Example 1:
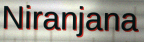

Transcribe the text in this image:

Niranjana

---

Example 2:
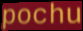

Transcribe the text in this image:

pochu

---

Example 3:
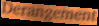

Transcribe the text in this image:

Derangement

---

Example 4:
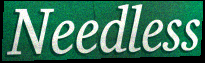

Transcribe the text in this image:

Needless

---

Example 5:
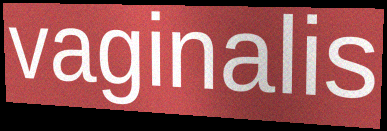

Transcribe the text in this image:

vaginalis